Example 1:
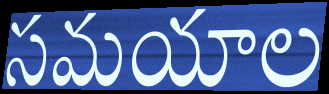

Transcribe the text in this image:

సమయాల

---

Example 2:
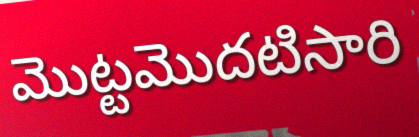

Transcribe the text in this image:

మొట్టమొదటిసారి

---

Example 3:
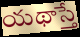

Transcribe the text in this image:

యథాస్తే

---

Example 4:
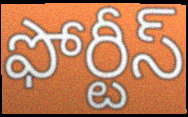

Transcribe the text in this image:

ఫోర్టీస్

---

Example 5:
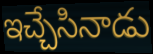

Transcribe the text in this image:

ఇచ్చేసినాడు